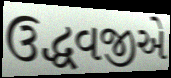
ઉદ્ધવજીએ